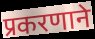
प्रकरणाने